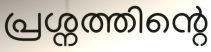
പ്രശ്നത്തിന്റെ